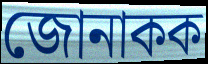
জোনাকক